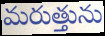
మరుత్తును